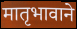
मातृभावाने